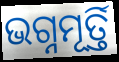
ଭଗ୍ନମୂର୍ତ୍ତି